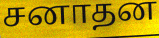
சனாதன